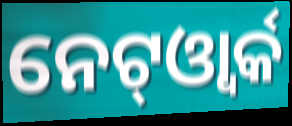
ନେଟ୍ଓ୍ବାର୍କ